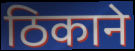
ठिकाने